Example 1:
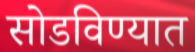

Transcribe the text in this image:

सोडविण्यात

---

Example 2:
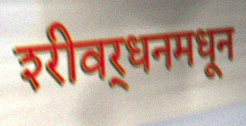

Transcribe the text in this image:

श्रीवर्धनमधून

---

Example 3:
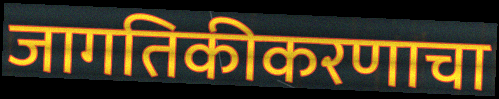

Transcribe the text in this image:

जागतिकीकरणाचा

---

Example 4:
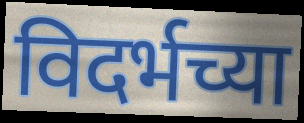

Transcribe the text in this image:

विदर्भच्या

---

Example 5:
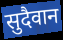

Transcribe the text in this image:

सुदैवान